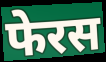
फेरस